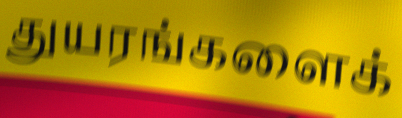
துயரங்களைக்